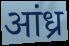
आंध्र